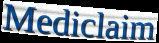
Mediclaim